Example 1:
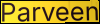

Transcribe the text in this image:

Parveen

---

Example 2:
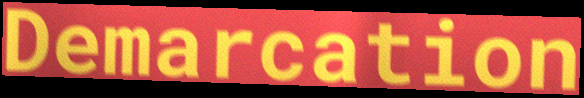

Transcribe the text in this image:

Demarcation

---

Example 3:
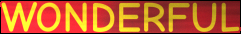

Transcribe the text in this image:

WONDERFUL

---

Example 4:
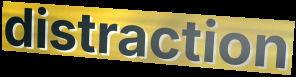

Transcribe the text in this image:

distraction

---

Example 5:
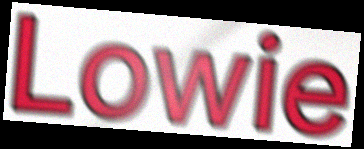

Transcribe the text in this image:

Lowie